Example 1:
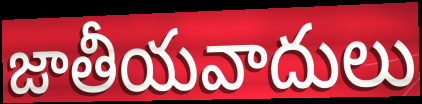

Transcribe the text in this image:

జాతీయవాదులు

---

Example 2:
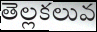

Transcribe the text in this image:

తెల్లకలువ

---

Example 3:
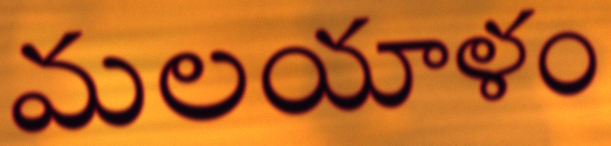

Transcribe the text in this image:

మలయాళం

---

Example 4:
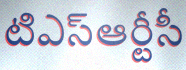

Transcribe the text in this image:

టిఎస్ఆర్టీసీ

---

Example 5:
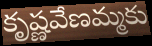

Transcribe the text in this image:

కృష్ణవేణమ్మకు